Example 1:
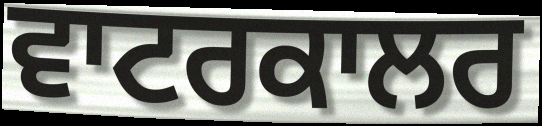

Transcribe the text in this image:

ਵਾਟਰਕਾਲਰ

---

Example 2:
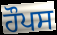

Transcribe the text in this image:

ਹੌਪਸ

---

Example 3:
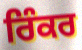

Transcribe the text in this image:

ਰਿੰਕਰ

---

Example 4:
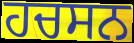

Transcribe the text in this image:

ਹਚਸਨ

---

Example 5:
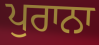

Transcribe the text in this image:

ਪੁਰਾਨਾ